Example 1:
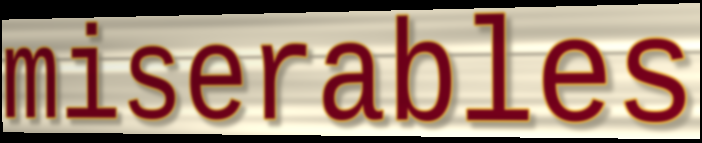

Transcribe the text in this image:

miserables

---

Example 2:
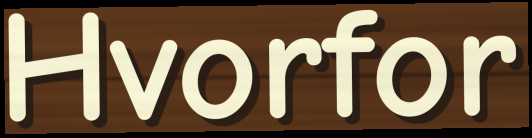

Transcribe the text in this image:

Hvorfor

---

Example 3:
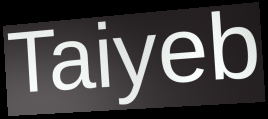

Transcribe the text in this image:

Taiyeb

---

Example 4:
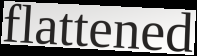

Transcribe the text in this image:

flattened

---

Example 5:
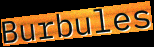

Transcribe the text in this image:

Burbules